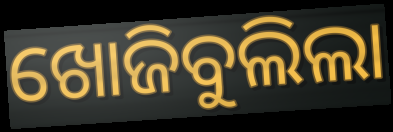
ଖୋଜିବୁଲିଲା